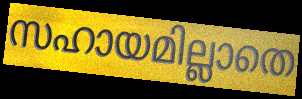
സഹായമില്ലാതെ